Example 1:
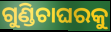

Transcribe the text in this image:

ଗୁଣ୍ଡିଚାଘରକୁ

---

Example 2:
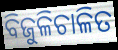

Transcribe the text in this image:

ବିଜୁଳିଚାଳିତ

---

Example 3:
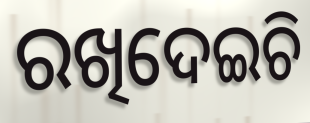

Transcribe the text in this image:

ରଖିଦେଇଚି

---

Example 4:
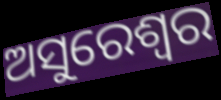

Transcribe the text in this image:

ଅସୁରେଶ୍ଵର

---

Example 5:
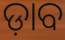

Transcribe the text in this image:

ଡ଼ାବ